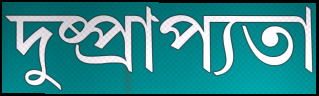
দুষ্প্রাপ্যতা